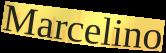
Marcelino